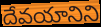
దేవయానిని